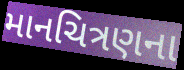
માનચિત્રણના